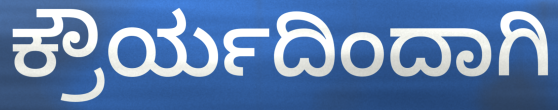
ಕ್ರೌರ್ಯದಿಂದಾಗಿ